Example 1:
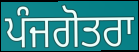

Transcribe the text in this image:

ਪੰਜਗੋਤਰਾ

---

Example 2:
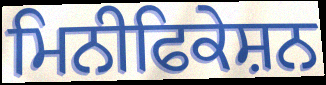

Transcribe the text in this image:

ਮਿਨੀਫਿਕੇਸ਼ਨ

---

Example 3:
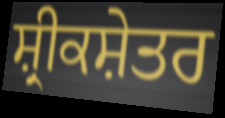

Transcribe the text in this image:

ਸ਼੍ਰੀਕਸ਼ੇਤਰ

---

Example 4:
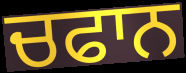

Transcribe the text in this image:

ਚਫਾਨ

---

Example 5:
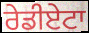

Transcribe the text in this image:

ਰੇਡੀਏਟਾ